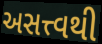
અસત્ત્વથી